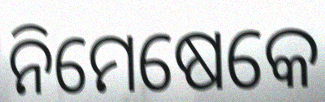
ନିମେଷେକେ